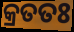
କ୍ରତତଃ